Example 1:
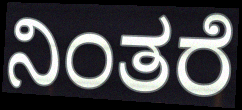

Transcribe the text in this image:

ನಿಂತರೆ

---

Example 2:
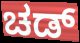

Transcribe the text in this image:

ಚಡ್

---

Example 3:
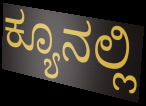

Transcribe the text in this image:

ಕ್ಯೂನಲ್ಲಿ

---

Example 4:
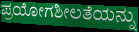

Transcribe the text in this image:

ಪ್ರಯೋಗಶೀಲತೆಯನ್ನು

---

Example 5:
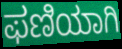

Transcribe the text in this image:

ಫಣಿಯಾಗಿ